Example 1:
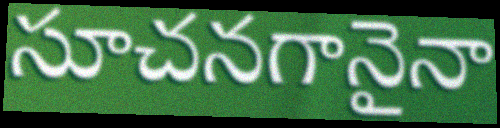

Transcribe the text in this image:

సూచనగానైనా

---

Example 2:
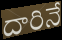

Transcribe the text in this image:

దారినే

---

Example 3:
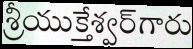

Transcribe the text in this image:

శ్రీయుక్తేశ్వర్‌గారు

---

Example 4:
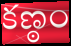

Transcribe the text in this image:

కణ్ఠం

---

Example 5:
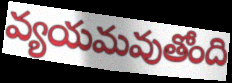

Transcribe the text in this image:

వ్యయమవుతోంది